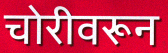
चोरीवरून